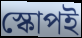
স্কোপই